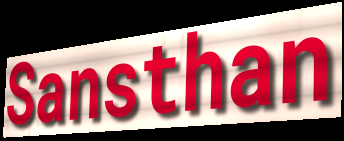
Sansthan